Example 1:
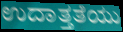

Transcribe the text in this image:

ಉದಾತ್ತತೆಯು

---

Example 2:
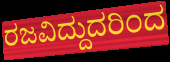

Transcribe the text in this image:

ರಜವಿದ್ದುದರಿಂದ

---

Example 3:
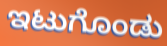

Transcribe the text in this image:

ಇಟುಗೊಂಡು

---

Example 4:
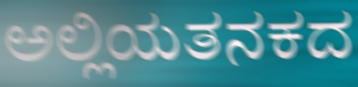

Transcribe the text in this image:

ಅಲ್ಲಿಯತನಕದ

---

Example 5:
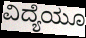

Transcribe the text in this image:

ವಿದ್ಯೆಯೂ